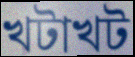
খটাখট